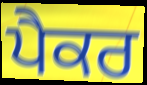
ਪੈਕਰ